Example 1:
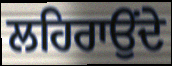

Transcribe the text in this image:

ਲਹਿਰਾਉਂਦੇ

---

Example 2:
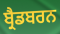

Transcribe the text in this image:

ਬ੍ਰੈਡਬਰਨ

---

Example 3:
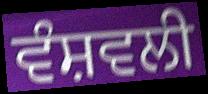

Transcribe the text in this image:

ਵੰਸ਼ਵਲੀ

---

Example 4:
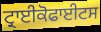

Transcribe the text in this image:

ਟ੍ਰਾਈਕੋਫਾਈਟਸ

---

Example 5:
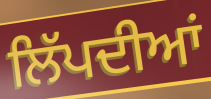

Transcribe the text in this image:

ਲਿੱਪਦੀਆਂ